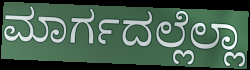
ಮಾರ್ಗದಲ್ಲೆಲ್ಲಾ